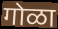
गोळा